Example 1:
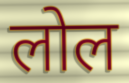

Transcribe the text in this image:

लोल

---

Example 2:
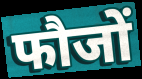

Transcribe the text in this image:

फौजों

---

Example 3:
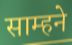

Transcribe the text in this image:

साम्हने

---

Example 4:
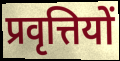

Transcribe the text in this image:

प्रवृत्तियों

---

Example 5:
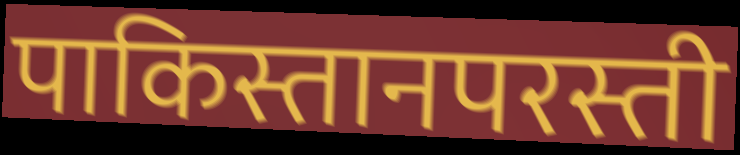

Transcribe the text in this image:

पाकिस्तानपरस्ती